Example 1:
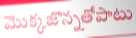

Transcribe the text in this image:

మొక్కజొన్నతోపాటు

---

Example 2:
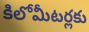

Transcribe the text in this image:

కిలోమీటర్లకు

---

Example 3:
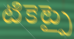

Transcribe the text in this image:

టికెట్పై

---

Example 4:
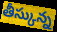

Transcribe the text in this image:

తీస్కున్న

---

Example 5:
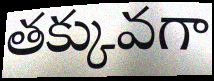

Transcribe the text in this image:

తక్కువగా